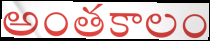
అంతకాలం